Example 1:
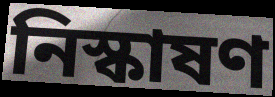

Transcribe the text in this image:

নিস্কাষণ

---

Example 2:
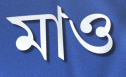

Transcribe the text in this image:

মাও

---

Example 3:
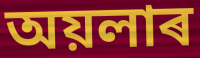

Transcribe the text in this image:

অয়লাৰ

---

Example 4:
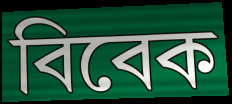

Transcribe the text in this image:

বিবেক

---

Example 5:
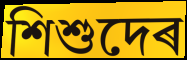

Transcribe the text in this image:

শিশুদেৰ